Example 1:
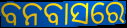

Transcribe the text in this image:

ବନବାସରେ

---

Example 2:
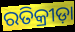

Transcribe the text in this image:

ରତିକ୍ରୀଡ଼ା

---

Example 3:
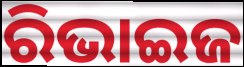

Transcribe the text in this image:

ରିଭାଇଜ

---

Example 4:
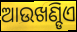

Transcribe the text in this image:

ଆଉଖଣ୍ଡିଏ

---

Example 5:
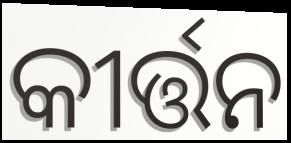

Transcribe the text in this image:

କୀର୍ତ୍ତନ